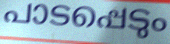
പാടപ്പെടും